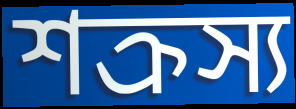
শক্রস্য